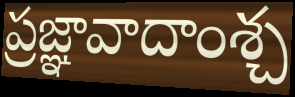
ప్రజ్ఞావాదాంశ్చ